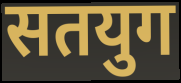
सतयुग